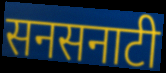
सनसनाटी